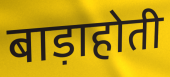
बाड़ाहोती